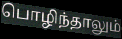
பொழிந்தாலும்